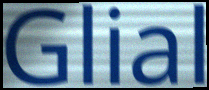
Glial